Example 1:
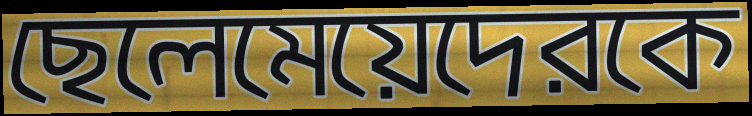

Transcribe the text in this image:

ছেলেমেয়েদেরকে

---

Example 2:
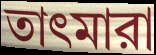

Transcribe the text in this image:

তাৎমারা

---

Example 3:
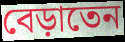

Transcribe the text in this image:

বেড়াতেন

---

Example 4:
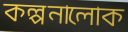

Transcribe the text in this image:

কল্পনালোক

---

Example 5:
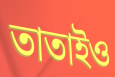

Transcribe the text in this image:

তাতাইও